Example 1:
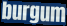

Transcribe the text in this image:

burgum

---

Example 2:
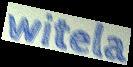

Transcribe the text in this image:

witela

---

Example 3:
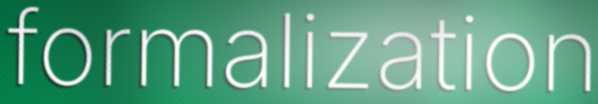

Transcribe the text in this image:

formalization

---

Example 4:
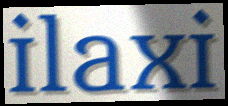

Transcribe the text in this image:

ilaxi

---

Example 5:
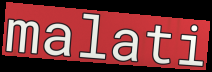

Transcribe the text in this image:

malati